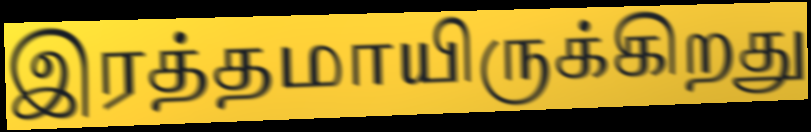
இரத்தமாயிருக்கிறது